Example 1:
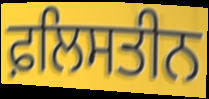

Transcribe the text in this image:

ਫ਼ਲਿਸਤੀਨ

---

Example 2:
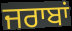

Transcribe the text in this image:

ਜਰਾਬਾਂ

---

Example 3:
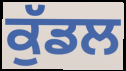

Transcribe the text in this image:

ਕੁੱਡਲ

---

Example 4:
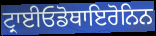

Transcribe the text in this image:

ਟ੍ਰਾਈਓਡੋਥਾਇਰੋਨਿਨ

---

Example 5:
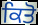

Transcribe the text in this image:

ਕਿਤੋ